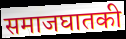
समाजघातकी